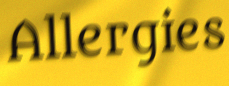
Allergies